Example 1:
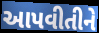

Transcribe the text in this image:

આપવીતીને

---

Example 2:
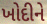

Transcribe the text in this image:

ખોદીને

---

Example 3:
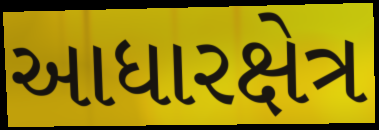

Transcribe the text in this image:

આધારક્ષેત્ર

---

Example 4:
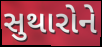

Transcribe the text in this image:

સુથારોને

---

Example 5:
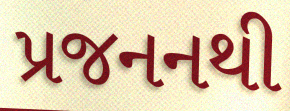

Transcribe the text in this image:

પ્રજનનથી